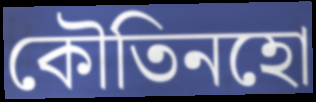
কৌতিনহো